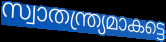
സ്വാതന്ത്ര്യമാകട്ടെ